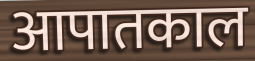
आपातकाल